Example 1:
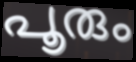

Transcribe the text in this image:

പൂരും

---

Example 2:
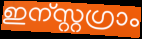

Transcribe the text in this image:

ഇന്സ്റ്റഗ്രാം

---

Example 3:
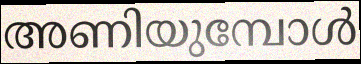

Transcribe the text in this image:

അണിയുമ്പോൾ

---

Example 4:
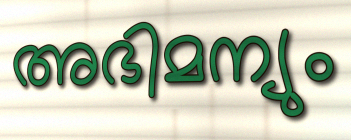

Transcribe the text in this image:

അഭിമന്യും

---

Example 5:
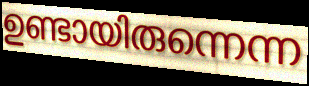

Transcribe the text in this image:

ഉണ്ടായിരുന്നെന്ന